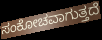
ಸಂಕೋಚವಾಗುತ್ತದೆ